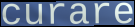
curare